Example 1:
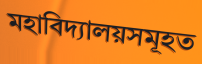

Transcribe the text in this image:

মহাবিদ্যালয়সমূহত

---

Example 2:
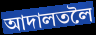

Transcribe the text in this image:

আদালতলৈ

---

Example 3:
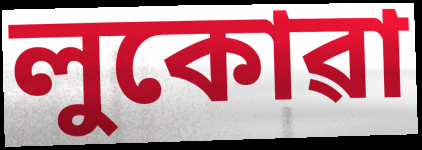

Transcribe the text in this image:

লুকোৱা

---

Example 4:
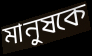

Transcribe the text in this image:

মানুষকে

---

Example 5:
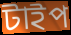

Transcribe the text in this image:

টাইপ